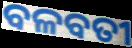
ବଳବତୀ